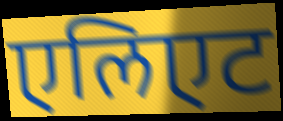
एलिएट